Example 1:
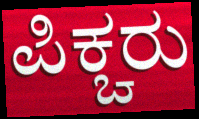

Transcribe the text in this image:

ಪಿಕ್ಚರು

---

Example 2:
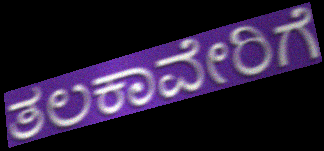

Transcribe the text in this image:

ತಲಕಾವೇರಿಗೆ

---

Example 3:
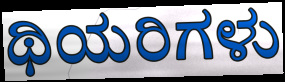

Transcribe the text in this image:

ಥಿಯರಿಗಳು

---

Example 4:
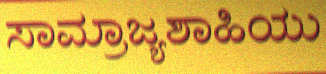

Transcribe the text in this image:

ಸಾಮ್ರಾಜ್ಯಶಾಹಿಯು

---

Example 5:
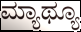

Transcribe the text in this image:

ಮ್ಯಾಥ್ಯೂ